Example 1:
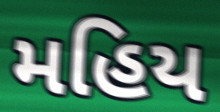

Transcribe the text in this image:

મહિય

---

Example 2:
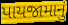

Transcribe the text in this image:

પાયજામાનું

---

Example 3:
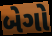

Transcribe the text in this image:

બેગો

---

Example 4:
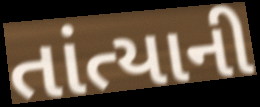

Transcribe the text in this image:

તાંત્યાની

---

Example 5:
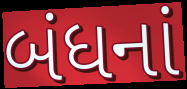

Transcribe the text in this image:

બંધનાં